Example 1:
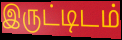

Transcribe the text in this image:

இருட்டிடம்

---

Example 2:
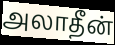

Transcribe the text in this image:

அலாதீன்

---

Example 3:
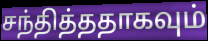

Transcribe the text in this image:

சந்தித்ததாகவும்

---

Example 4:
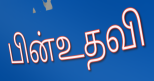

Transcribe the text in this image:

பின்உதவி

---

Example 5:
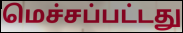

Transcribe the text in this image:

மெச்சப்பட்டது